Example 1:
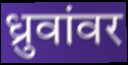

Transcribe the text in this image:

ध्रुवांवर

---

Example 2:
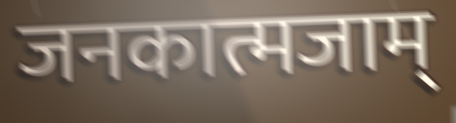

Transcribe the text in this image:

जनकात्मजाम्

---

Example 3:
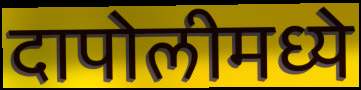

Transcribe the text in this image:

दापोलीमध्ये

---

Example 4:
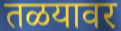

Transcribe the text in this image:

तळयावर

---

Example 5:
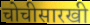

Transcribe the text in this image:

चोचीसारखी